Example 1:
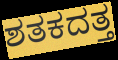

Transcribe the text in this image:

ಶತಕದತ್ತ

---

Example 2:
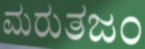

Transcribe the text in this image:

ಮರುತಜಂ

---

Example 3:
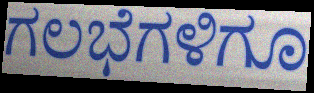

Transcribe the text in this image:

ಗಲಭೆಗಳಿಗೂ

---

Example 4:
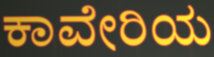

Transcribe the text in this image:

ಕಾವೇರಿಯ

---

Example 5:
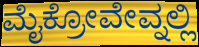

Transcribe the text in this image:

ಮೈಕ್ರೋವೇವ್ನಲ್ಲಿ